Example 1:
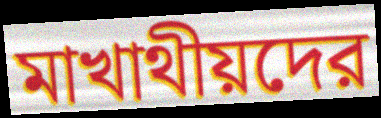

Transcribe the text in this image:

মাখাথীয়দের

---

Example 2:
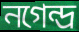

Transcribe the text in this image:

নগেন্দ্র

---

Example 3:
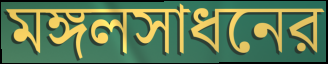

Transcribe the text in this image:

মঙ্গলসাধনের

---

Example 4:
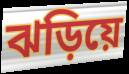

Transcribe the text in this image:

ঝড়িয়ে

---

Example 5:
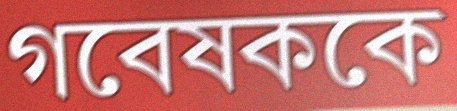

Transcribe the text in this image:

গবেষককে